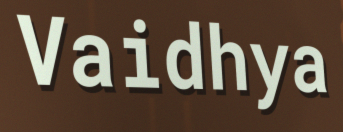
Vaidhya